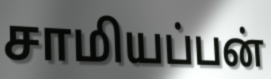
சாமியப்பன்